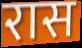
रास